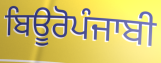
ਬਿਊਰੋਪੰਜਾਬੀ